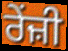
ਰੇਂਜ਼ੀ